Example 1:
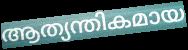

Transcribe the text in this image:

ആത്യന്തികമായ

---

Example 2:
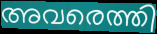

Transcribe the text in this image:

അവരെത്തി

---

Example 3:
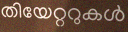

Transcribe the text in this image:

തിയേറ്ററുകൾ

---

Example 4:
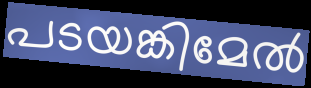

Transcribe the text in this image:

പടയങ്കിമേൽ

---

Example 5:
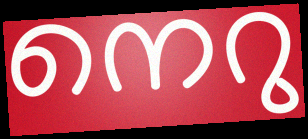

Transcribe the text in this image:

നെറു